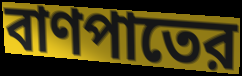
বাণপাতের